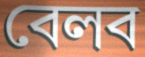
বেলব